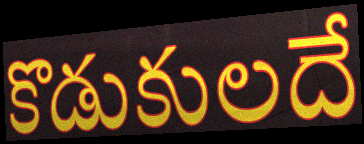
కొడుకులదే